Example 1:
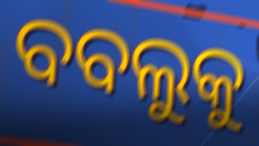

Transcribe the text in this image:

ବବଲୁକୁ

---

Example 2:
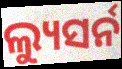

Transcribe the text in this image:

ଲ୍ୟୁସର୍ନ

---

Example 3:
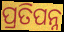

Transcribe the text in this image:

ପ୍ରତିପନ୍ନ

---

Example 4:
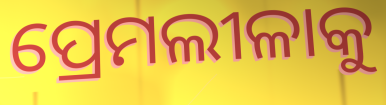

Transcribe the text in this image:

ପ୍ରେମଲୀଳାକୁ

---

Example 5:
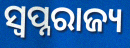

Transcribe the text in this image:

ସ୍ୱପ୍ନରାଜ୍ୟ